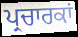
ਪ੍ਰਚਾਰਕਾਂ